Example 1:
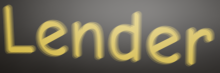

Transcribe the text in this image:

Lender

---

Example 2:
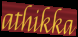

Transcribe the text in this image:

athikka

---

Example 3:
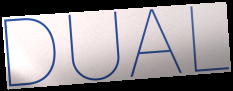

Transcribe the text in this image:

DUAL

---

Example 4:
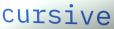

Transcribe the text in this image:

cursive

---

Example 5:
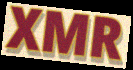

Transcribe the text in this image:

XMR